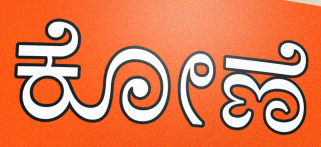
ಕೋಣೆ